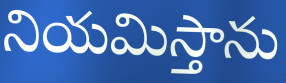
నియమిస్తాను